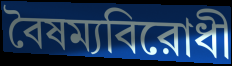
বৈষম্যবিরোধী